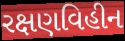
રક્ષણવિહીન